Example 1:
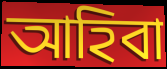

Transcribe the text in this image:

আহিবা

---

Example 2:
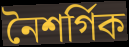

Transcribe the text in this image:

নৈশৰ্গিক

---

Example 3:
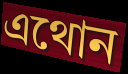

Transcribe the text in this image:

এথোন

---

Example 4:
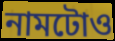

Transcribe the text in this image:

নামটোও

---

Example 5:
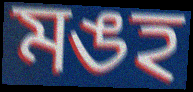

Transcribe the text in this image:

মঙহ